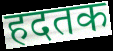
हदतक